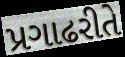
પ્રગાઢરીતે